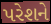
પરેશને